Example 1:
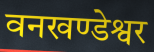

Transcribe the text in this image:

वनखण्डेश्वर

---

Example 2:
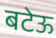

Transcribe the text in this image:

बटेऊ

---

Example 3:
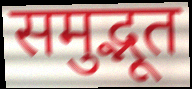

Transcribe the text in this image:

समुद्भूत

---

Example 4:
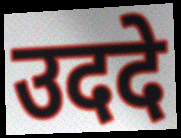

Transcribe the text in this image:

उददे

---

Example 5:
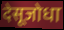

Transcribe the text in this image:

देसूजोधा